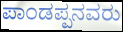
ಪಾಂಡಪ್ಪನವರು